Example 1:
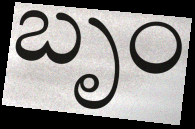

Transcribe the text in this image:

బృం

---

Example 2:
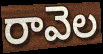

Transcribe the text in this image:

రావెల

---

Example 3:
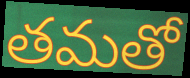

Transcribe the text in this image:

తమతో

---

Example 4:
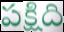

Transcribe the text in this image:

పక్షిది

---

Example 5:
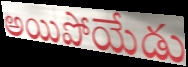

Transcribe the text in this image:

అయిపోయేడు